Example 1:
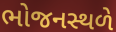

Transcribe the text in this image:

ભોજનસ્થળે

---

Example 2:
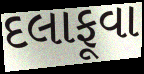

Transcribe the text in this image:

દલાફૂવા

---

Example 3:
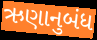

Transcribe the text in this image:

ઋણાનુબંધ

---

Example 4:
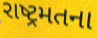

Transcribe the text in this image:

રાષ્ટ્રમતના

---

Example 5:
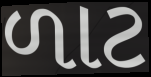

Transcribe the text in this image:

ળાટ